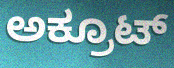
ಅಕ್ರೂಟ್